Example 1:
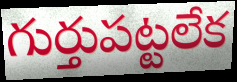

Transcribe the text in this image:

గుర్తుపట్టలేక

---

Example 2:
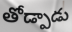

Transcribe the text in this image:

తోడ్పాడు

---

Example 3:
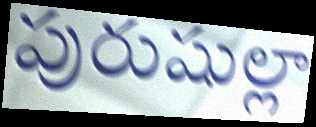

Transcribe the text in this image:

పురుషుల్లా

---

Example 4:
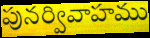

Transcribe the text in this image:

పునర్వివాహము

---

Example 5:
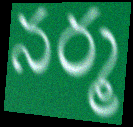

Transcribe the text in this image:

నర్మ